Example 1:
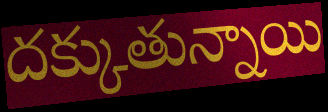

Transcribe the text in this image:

దక్కుతున్నాయి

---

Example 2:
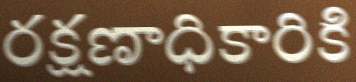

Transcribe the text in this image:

రక్షణాధికారికి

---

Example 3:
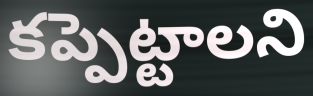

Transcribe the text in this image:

కప్పెట్టాలని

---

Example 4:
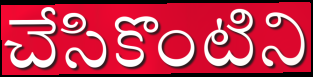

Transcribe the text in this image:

చేసికొంటిని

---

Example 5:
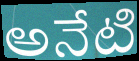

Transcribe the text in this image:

అనేటి